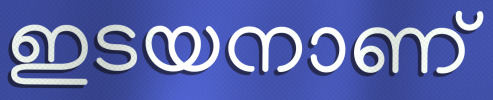
ഇടയനാണ്